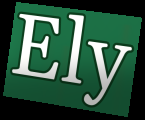
Ely